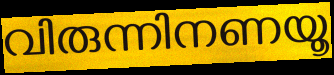
വിരുന്നിനണയൂ